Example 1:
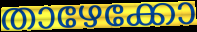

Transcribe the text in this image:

താഴേക്കോ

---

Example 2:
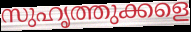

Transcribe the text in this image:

സുഹൃത്തുക്കളെ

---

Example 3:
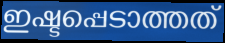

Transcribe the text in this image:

ഇഷ്ടപ്പെടാത്തത്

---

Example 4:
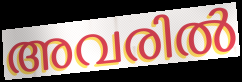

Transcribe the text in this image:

അവരിൽ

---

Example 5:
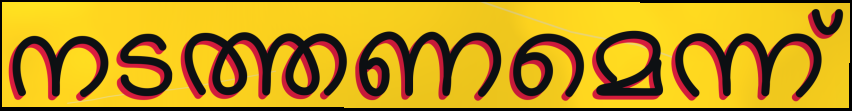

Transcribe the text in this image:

നടത്തണമെന്ന്